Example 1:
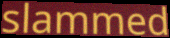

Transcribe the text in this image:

slammed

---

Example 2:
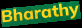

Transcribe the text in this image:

Bharathy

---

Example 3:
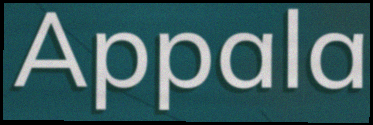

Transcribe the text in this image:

Appala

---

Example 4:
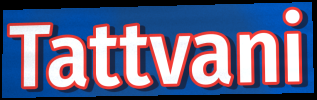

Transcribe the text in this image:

Tattvani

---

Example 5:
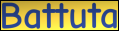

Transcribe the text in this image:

Battuta